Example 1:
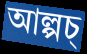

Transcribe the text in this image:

আল্পচ্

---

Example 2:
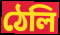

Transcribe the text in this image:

ঠেলি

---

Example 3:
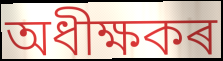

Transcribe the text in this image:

অধীক্ষকৰ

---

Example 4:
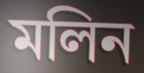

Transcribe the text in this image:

মলিন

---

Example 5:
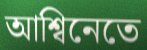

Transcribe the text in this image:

আশ্বিনেতে